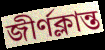
জীর্ণক্লান্ত